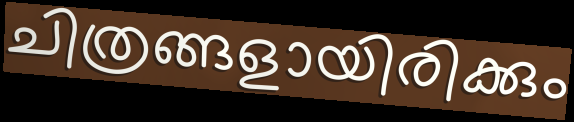
ചിത്രങ്ങളായിരിക്കും